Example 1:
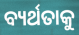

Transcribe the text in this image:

ବ୍ୟର୍ଥତାକୁ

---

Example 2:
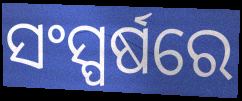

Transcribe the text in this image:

ସଂସ୍ପର୍ଷରେ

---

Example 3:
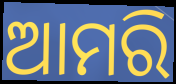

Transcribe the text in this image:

ଆମରି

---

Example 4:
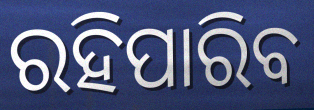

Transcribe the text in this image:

ରହିପାରିବ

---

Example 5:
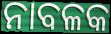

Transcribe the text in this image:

ନାବଳକ